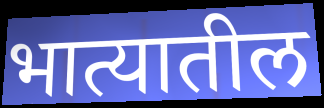
भात्यातील